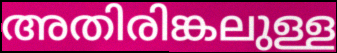
അതിരിങ്കലുള്ള